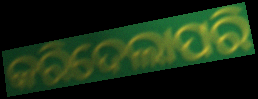
କରିଦେଲାପରି